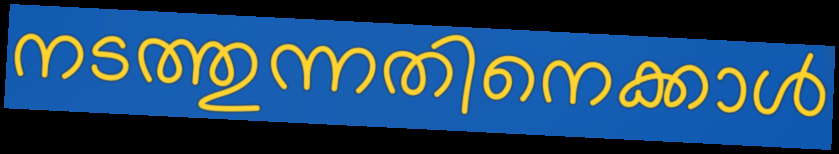
നടത്തുന്നതിനെക്കാൾ